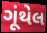
ગૂંથેલ